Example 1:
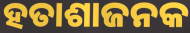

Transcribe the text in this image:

ହତାଶାଜନକ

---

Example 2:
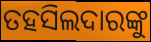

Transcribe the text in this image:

ତହସିଲଦାରଙ୍କୁ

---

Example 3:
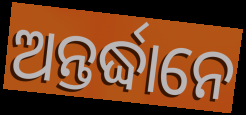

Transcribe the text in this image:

ଅନ୍ତର୍ଦ୍ଧାନେ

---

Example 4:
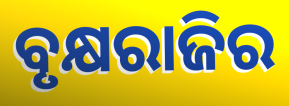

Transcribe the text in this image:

ବୃକ୍ଷରାଜିର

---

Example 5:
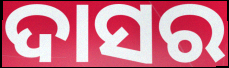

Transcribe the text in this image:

ଦାସର